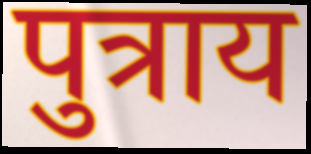
पुत्राय